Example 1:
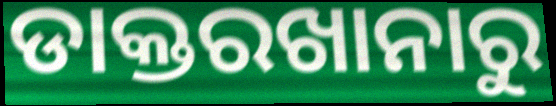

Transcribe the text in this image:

ଡାକ୍ତରଖାନାରୁ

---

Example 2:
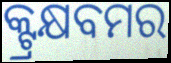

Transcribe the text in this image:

କ୍ଟ୍ରକ୍ଷବମର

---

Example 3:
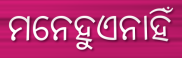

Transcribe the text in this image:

ମନେହୁଏନାହିଁ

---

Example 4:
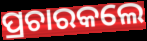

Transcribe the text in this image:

ପ୍ରଚାରକଲେ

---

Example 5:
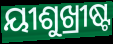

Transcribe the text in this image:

ୟୀଶୁଖ୍ରୀଷ୍ଟ